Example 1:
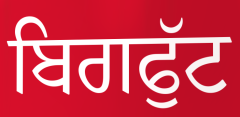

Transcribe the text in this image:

ਬਿਗਫੁੱਟ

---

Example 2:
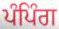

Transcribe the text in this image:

ਪੰਪਿੰਗ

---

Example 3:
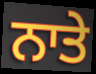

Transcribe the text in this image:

ਨਾਤੇ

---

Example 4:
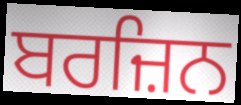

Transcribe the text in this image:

ਬਰਜ਼ਿਨ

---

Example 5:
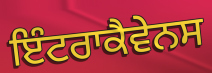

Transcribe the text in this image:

ਇੰਟਰਾਕੈਵੇਨਸ